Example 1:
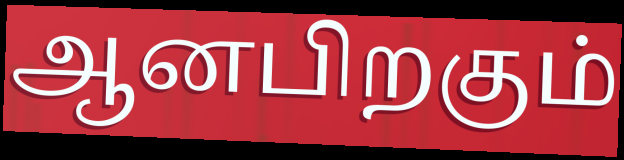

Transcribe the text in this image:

ஆனபிறகும்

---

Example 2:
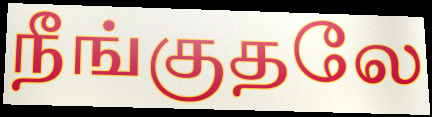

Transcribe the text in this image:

நீங்குதலே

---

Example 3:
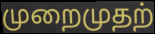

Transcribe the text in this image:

முறைமுதற்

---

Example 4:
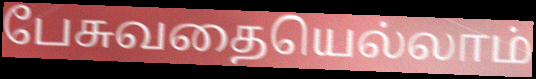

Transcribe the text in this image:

பேசுவதையெல்லாம்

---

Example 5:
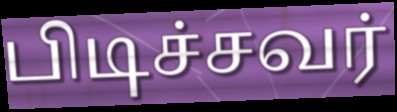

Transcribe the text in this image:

பிடிச்சவர்